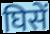
घिसें